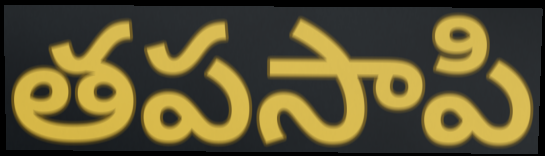
తపసాపి